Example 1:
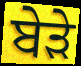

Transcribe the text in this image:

ਬੇੜੇ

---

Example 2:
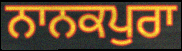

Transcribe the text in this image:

ਨਾਨਕਪੁਰਾ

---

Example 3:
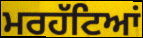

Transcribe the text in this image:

ਮਰਹੱਟਿਆਂ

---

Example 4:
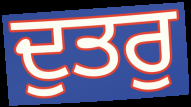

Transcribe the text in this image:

ਦੁਤਰੁ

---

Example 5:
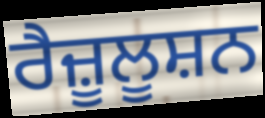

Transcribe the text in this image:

ਰੈਜ਼ੂਲੂਸ਼ਨ